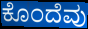
ಕೊಂದೆವು